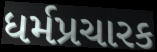
ધર્મપ્રચારક